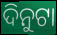
ଦିନୁଟା